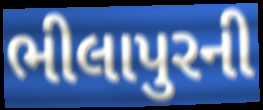
ભીલાપુરની